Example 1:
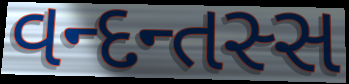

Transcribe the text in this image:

વન્દન્તસ્સ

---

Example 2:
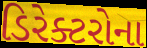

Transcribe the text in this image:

ડિરેક્ટરોના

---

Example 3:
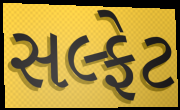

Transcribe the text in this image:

સલ્ફેટ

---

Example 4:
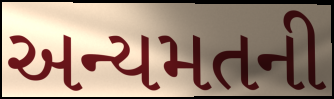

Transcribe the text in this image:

અન્યમતની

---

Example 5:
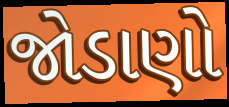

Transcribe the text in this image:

જોડાણો